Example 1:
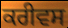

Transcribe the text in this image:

ਕਰੀਵਸ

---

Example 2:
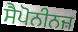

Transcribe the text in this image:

ਸੈਪੋਨੀਨਜ਼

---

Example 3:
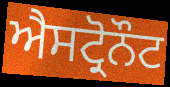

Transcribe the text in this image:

ਐਸਟ੍ਰੋਨੌਟ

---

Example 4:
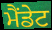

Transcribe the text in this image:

ਮੈਂਡੇਟ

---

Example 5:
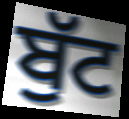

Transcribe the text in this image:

ਬੁੱਟ